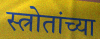
स्त्रोतांच्या